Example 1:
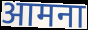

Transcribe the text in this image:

आमना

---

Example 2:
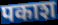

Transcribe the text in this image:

पकाश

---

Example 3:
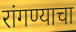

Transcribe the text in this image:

रांगण्याचा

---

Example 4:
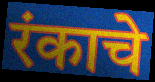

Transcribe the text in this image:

रंकाचे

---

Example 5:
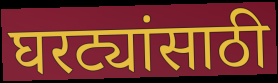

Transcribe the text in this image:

घरट्यांसाठी